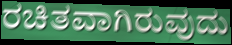
ರಚಿತವಾಗಿರುವುದು